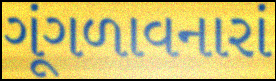
ગૂંગળાવનારાં